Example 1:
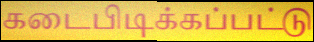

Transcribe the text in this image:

கடைபிடிக்கப்பட்டு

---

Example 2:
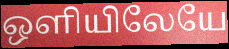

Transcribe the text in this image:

ஒளியிலேயே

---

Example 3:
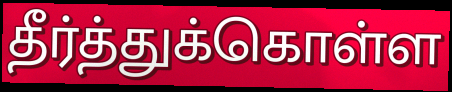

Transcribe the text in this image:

தீர்த்துக்கொள்ள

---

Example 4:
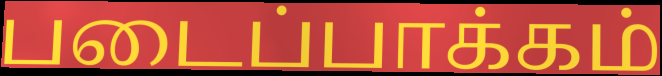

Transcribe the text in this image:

படைப்பாக்கம்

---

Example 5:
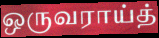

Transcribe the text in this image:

ஒருவராய்த்